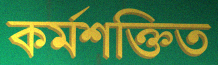
কৰ্মশক্তিত